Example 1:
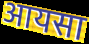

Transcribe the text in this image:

आयसा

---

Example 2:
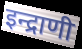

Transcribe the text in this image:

इन्द्राणी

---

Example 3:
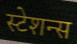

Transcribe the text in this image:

स्टेशन्स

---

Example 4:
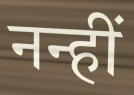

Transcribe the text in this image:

नन्‍हीं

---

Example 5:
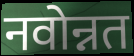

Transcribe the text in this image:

नवोन्नत